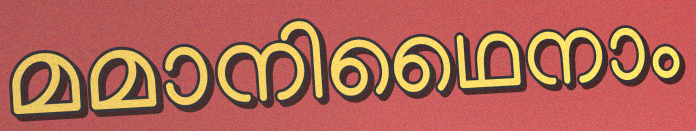
മമാനിഥൈനാം